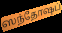
ஸந்தோஷப்